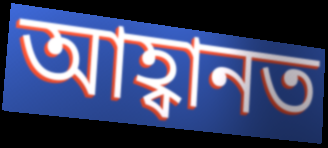
আহ্বানত